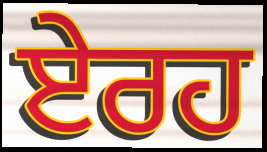
ਏਰਹ